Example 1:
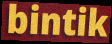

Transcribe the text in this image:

bintik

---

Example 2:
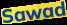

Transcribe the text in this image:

Sawad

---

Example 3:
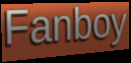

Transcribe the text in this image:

Fanboy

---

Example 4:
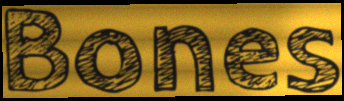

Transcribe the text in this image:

Bones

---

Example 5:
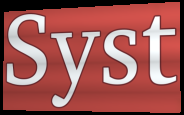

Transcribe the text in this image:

Syst